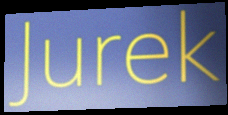
Jurek